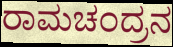
ರಾಮಚಂದ್ರನ